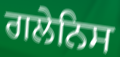
ਗਲੇਨਿਸ